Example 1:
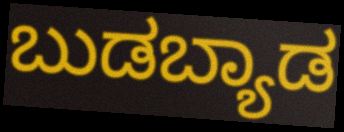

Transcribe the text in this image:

ಬುಡಬ್ಯಾಡ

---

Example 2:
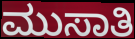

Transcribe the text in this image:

ಮುಸಾತಿ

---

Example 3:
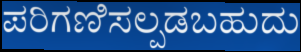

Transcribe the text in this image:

ಪರಿಗಣಿಸಲ್ಪಡಬಹುದು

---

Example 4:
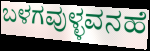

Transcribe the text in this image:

ಬಳಗವುಳ್ಳವನಹೆ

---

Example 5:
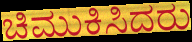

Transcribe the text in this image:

ಚಿಮುಕಿಸಿದರು